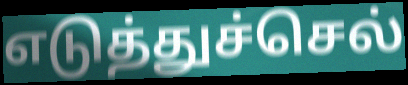
எடுத்துச்செல்